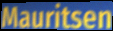
Mauritsen